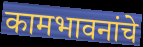
कामभावनांचे